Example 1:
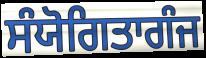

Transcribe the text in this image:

ਸੰਯੋਗਿਤਾਗੰਜ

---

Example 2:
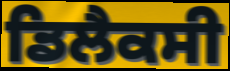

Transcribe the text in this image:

ਡਿਲੈਕਸੀ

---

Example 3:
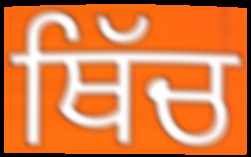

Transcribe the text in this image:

ਥਿੱਚ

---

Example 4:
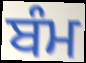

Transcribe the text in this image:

ਬੰਮ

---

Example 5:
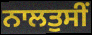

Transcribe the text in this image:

ਨਾਲਤੁਸੀਂ